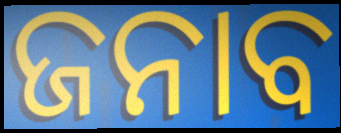
ଜନାବ